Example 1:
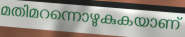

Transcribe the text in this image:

മതിമറന്നൊഴുകുകയാണ്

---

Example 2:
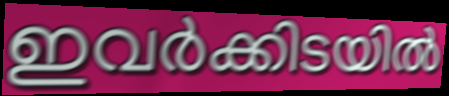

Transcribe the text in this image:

ഇവർക്കിടയിൽ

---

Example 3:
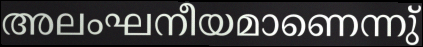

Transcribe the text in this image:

അലംഘനീയമാണെന്നു്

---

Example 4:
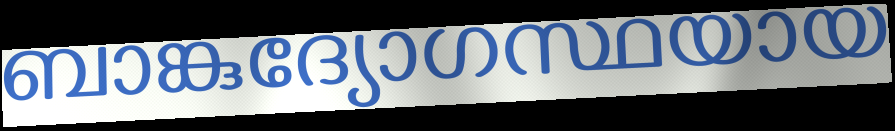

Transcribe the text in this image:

ബാങ്കുദ്യോഗസ്ഥയായ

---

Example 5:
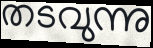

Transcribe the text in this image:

തടവുന്നു